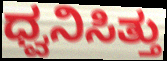
ಧ್ವನಿಸಿತ್ತು